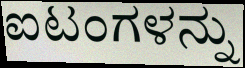
ಐಟಂಗಳನ್ನು